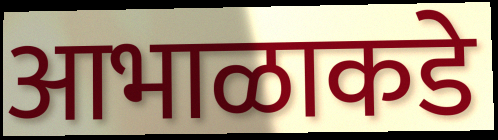
आभाळाकडे